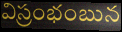
విస్రంభంబున